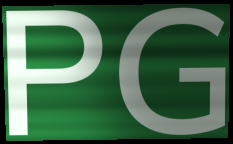
PG